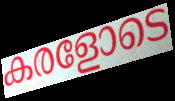
കരളോടെ